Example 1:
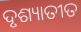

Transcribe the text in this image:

ଦୃଶ୍ୟାତୀତ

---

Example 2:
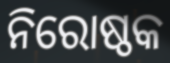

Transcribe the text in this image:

ନିରୋଷ୍ଠକ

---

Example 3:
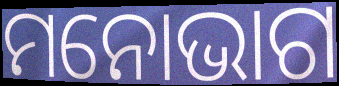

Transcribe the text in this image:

ମନୋଭାଗ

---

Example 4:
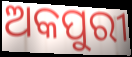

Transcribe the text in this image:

ଅକପୁରୀ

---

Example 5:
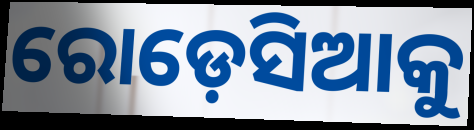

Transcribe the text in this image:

ରୋଡ଼େସିଆକୁ